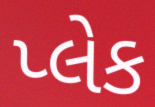
પ્લેક